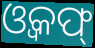
ଓ୍ୱକଫ୍